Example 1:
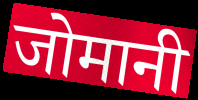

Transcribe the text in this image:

जोमानी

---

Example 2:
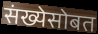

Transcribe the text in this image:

संख्येसोबत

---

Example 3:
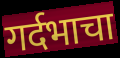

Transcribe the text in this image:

गर्दभाचा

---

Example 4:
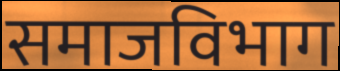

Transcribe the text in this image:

समाजविभाग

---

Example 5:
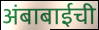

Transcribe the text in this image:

अंबाबाईची